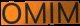
OMIM